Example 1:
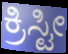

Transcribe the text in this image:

ಕ್ರಿಸ್ಟೀ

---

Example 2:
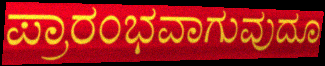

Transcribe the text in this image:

ಪ್ರಾರಂಭವಾಗುವುದೂ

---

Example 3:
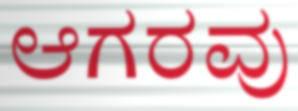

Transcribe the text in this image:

ಆಗರವು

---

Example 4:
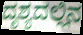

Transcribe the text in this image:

ದೃಶ್ಯದಲ್ಲಿನ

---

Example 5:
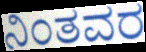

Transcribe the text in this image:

ನಿಂತವರ